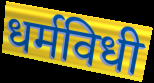
धर्मविधी